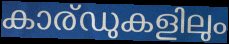
കാര്ഡുകളിലും